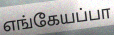
எங்கேயப்பா